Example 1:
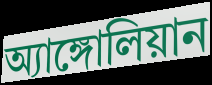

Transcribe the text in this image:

অ্যাঙ্গোলিয়ান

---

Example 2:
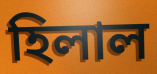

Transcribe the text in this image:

হিলাল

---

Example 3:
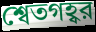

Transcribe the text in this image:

শ্বেতগহ্বর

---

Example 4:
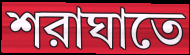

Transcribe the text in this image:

শরাঘাতে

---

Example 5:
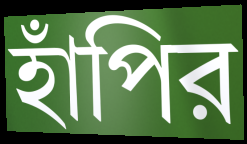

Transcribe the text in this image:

হাঁপির